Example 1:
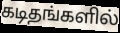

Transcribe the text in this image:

கடிதங்களில்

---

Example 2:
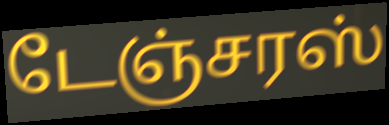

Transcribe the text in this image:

டேஞ்சரஸ்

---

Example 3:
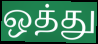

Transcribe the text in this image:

ஒத்து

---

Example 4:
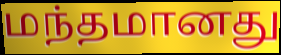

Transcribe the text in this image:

மந்தமானது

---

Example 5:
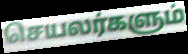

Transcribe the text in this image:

செயலர்களும்